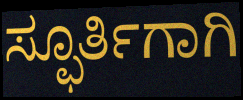
ಸ್ಫೂರ್ತಿಗಾಗಿ